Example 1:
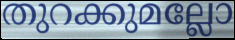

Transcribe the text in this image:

തുറക്കുമല്ലോ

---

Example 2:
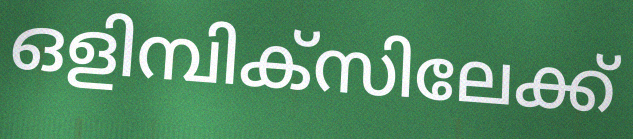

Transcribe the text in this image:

ഒളിമ്പിക്സിലേക്ക്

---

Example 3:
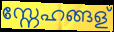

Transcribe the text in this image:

സ്നേഹങ്ങള്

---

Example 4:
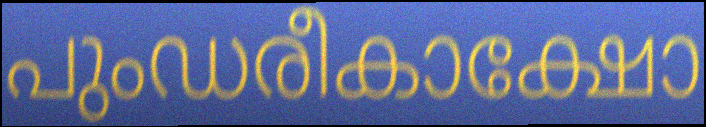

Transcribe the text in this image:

പുംഡരീകാക്ഷോ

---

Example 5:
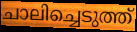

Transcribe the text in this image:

ചാലിച്ചെടുത്ത്